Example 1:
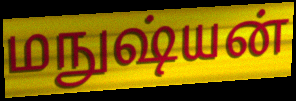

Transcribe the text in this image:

மநுஷ்யன்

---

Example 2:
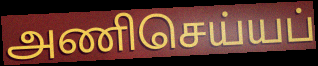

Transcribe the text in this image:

அணிசெய்யப்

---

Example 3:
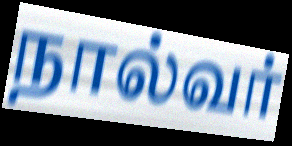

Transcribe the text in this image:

நால்வர்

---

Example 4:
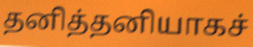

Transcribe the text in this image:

தனித்தனியாகச்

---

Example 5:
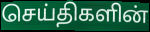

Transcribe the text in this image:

செய்திகளின்